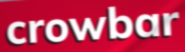
crowbar